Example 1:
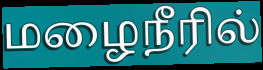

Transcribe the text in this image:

மழைநீரில்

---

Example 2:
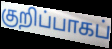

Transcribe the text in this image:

குறிப்பாகப்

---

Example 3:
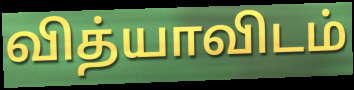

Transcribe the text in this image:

வித்யாவிடம்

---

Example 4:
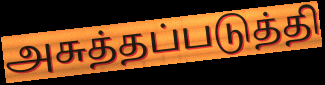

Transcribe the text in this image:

அசுத்தப்படுத்தி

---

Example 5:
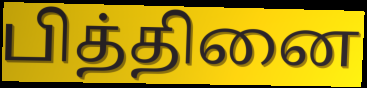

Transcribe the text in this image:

பித்தினை